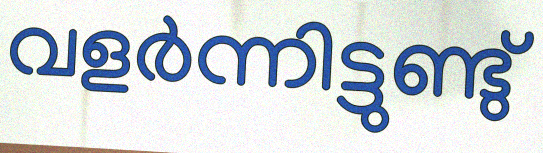
വളർന്നിട്ടുണ്ടു്